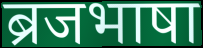
ब्रजभाषा